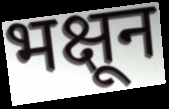
भक्षून